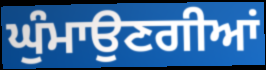
ਘੁੰਮਾਉਣਗੀਆਂ